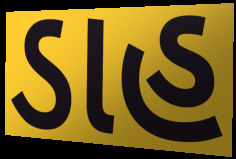
ડાહ